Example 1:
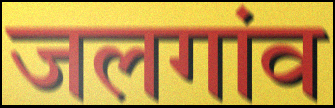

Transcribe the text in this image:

जलगांव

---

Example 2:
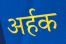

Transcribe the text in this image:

अर्हक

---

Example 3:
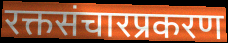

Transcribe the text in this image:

रक्तसंचारप्रकरण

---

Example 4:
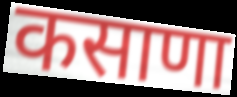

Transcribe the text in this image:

कसाणा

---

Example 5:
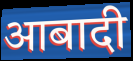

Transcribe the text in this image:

आबादी